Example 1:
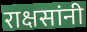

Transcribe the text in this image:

राक्षसांनी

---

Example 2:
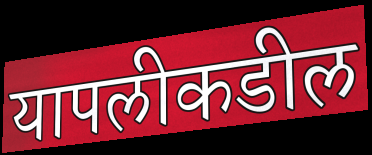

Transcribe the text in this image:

यापलीकडील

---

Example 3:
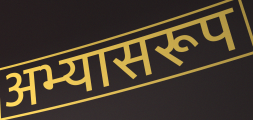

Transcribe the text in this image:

अभ्यासरूप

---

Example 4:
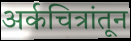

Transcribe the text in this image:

अर्कचित्रांतून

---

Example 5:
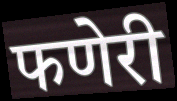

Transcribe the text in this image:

फणेरी